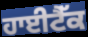
ਹਾਈਟੈੱਕ